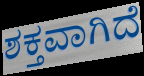
ಶಕ್ತವಾಗಿದೆ